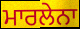
ਮਾਰਲੇਨਾ